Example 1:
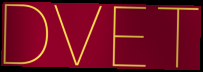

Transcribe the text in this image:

DVET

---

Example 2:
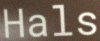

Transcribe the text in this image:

Hals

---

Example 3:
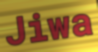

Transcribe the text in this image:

Jiwa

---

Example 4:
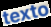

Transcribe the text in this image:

texto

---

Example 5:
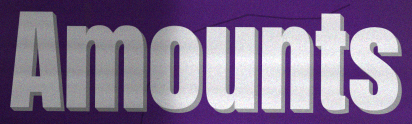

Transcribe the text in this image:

Amounts